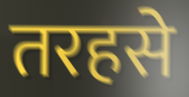
तरहसे